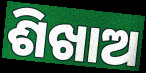
ଶିଖାଅ